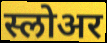
स्लोअर